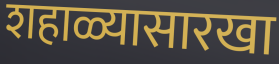
शहाळ्यासारखा